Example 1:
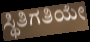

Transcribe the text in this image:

ಸ್ಥಿತಿಗತಿಯೇ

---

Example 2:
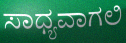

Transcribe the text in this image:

ಸಾಧ್ಯವಾಗಲಿ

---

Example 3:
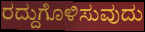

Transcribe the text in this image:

ರದ್ದುಗೊಳಿಸುವುದು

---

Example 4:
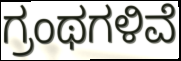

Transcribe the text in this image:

ಗ್ರಂಥಗಳಿವೆ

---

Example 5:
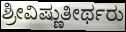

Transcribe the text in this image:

ಶ್ರೀವಿಷ್ಣುತೀರ್ಥರು